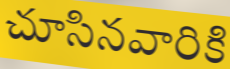
చూసినవారికి